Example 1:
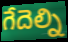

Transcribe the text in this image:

గేదెల్ని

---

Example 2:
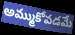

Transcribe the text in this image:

అమ్ముకోవడమే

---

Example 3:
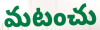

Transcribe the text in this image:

మటంచు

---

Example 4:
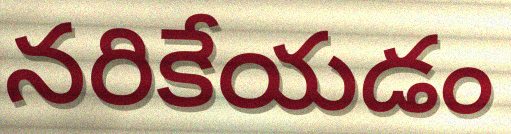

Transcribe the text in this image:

నరికేయడం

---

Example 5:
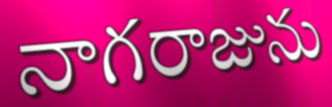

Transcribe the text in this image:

నాగరాజును